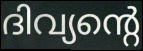
ദിവ്യന്റെ